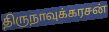
திருநாவுக்கரசன்